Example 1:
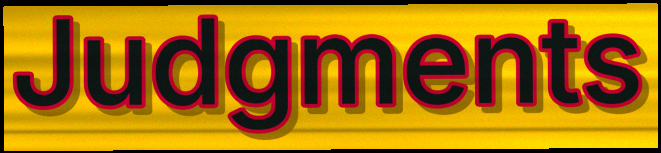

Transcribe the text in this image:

Judgments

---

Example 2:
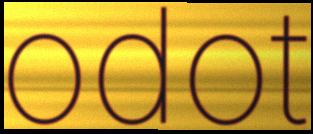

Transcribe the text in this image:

odot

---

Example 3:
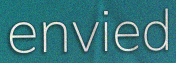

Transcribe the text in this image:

envied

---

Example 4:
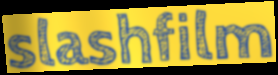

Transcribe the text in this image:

slashfilm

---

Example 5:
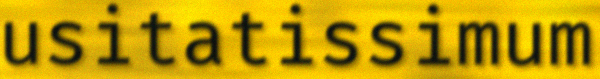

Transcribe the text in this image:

usitatissimum